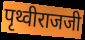
पृथ्वीराजजी